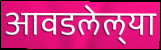
आवडलेल्या